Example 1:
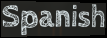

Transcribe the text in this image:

Spanish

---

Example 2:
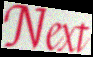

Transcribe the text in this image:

Next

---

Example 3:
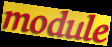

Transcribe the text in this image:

module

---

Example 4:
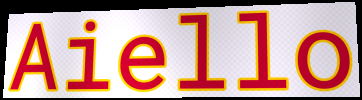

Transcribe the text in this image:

Aiello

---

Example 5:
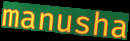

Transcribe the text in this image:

manusha